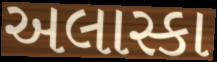
અલાસ્કા